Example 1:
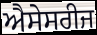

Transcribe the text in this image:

ਐਸੇਸਰੀਜ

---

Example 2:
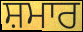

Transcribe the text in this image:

ਸ਼ਮਾਰ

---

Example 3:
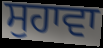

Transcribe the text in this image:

ਸੁਹਾਵਾ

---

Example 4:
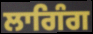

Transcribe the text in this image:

ਲਾਗਿੰਗ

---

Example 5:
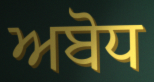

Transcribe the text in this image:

ਅਬੋਧ